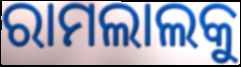
ରାମଲାଲକୁ